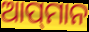
ଆପ୍‌ମାନ